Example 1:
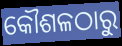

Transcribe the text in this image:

କୌଶଳଠାରୁ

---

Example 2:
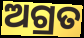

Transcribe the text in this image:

ଅଗ୍ରତ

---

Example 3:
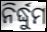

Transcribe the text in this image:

ନିର୍ଦ୍ଧୁମ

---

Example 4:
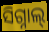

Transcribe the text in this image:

ସିଗ୍ନାଲ୍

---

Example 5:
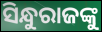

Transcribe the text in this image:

ସିନ୍ଧୁରାଜଙ୍କୁ